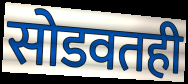
सोडवतही